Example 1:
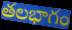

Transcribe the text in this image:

తలభాగం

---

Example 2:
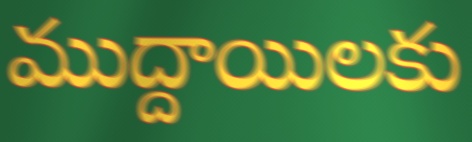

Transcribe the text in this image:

ముద్దాయిలకు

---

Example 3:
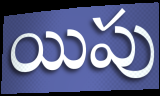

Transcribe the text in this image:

యిపు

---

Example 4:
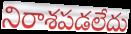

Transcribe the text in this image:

నిరాశపడలేదు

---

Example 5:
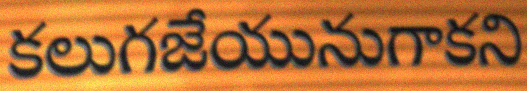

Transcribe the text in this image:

కలుగజేయునుగాకని